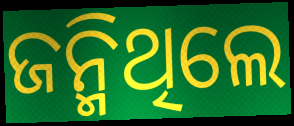
ଜନ୍ମିଥିଲେ